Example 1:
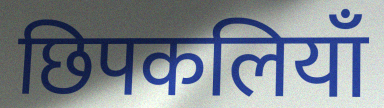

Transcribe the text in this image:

छिपकलियाँ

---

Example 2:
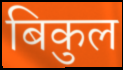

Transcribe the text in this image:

बिकुल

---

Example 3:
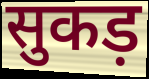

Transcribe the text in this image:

सुकड़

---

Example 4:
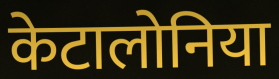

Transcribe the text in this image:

केटालोनिया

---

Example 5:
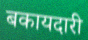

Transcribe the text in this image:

बकायदारी